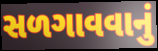
સળગાવવાનું